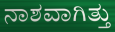
ನಾಶವಾಗಿತ್ತು